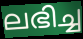
ലഭിച്ച